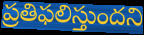
ప్రతిఫలిస్తుందని